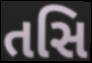
તસિ